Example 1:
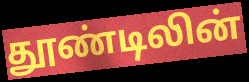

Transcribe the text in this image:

தூண்டிலின்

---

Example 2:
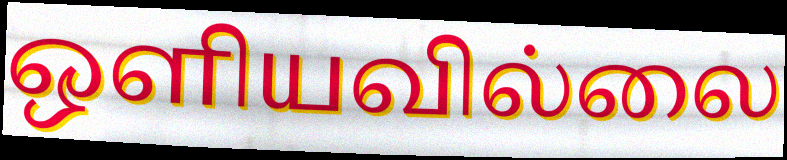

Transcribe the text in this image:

ஒளியவில்லை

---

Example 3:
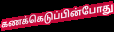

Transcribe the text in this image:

கணக்கெடுப்பின்போது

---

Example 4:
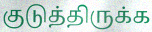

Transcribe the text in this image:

குடுத்திருக்க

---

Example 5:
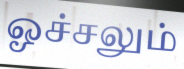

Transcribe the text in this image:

ஓச்சலும்